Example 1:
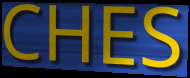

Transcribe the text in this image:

CHES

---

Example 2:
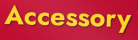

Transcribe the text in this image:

Accessory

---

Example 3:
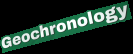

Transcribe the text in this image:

Geochronology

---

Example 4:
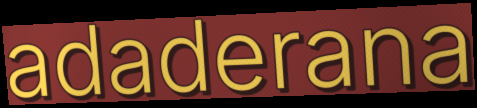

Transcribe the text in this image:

adaderana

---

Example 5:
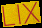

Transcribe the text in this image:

LIX